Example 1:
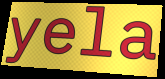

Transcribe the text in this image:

yela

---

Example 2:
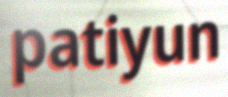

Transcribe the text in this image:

patiyun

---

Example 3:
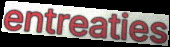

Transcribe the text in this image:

entreaties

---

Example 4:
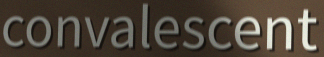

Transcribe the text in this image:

convalescent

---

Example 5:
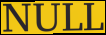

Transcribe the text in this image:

NULL